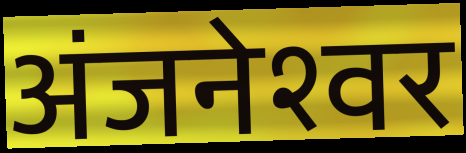
अंजनेश्वर